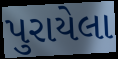
પુરાયેલા